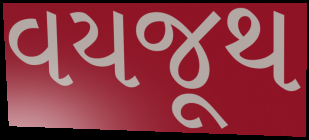
વયજૂથ